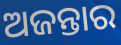
ଅଜନ୍ତାର